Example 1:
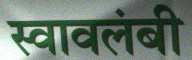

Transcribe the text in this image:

स्वावलंबी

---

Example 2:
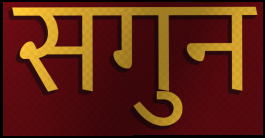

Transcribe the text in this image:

सगुन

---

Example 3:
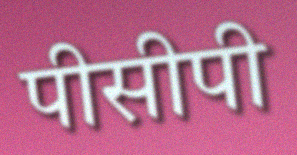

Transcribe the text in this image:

पीसीपी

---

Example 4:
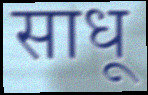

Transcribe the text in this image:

साधू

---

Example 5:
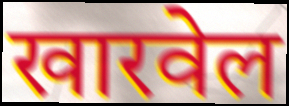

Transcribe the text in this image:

खारवेल